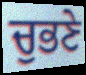
ਚੁਭਣੇ